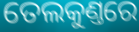
ତେଲକୁଣ୍ତରେ